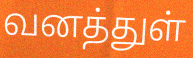
வனத்துள்